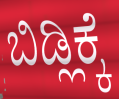
ಬಿಡ್ಲಿಕ್ಕೆ